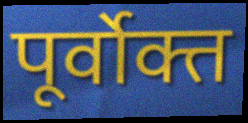
पूर्वोक्त